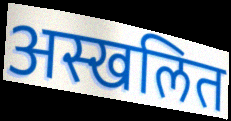
अस्खलित